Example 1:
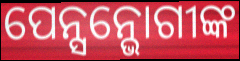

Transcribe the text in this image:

ପେନ୍ସନ୍ଭୋଗୀଙ୍କ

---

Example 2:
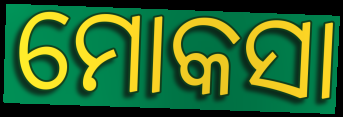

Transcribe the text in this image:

ମୋକସା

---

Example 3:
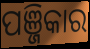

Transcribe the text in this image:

ପଞ୍ଜିକାର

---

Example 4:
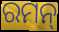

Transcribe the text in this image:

ରମନ୍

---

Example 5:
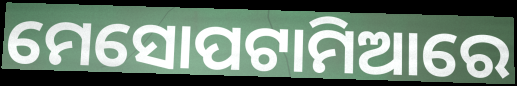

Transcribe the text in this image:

ମେସୋପଟାମିଆରେ